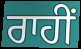
ਰਾਹੀਂ